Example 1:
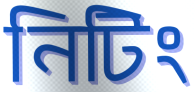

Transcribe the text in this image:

নিটিং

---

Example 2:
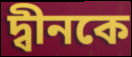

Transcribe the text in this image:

দ্বীনকে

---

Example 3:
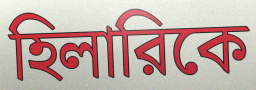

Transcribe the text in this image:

হিলারিকে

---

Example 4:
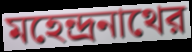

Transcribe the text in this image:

মহেন্দ্রনাথের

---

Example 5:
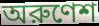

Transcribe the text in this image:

অরুণেশ